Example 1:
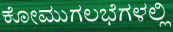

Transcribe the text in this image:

ಕೋಮುಗಲಭೆಗಳಲ್ಲಿ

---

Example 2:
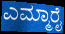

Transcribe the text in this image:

ಎಮ್ಮಾರೈ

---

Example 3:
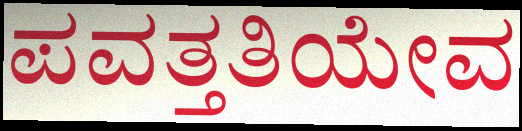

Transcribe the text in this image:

ಪವತ್ತತಿಯೇವ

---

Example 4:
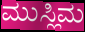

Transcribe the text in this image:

ಮುಸ್ಲಿಮ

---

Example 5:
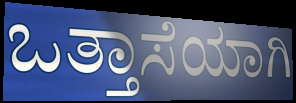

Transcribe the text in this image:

ಒತ್ತಾಸೆಯಾಗಿ